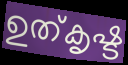
ഉത്കൃഷ്ട